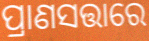
ପ୍ରାଣସତ୍ତାରେ